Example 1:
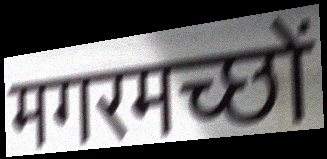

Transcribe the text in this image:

मगरमच्छों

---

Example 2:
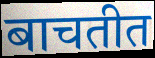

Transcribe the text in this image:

बाचतीत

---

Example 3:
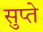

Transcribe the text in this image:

सुप्ते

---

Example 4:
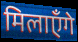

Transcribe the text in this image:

मिलाएँगे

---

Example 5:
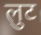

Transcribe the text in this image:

लुट